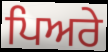
ਪਿਅਰੇ